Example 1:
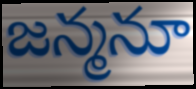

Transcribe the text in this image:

జన్మనూ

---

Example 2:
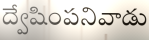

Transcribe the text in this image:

ద్వేషింపనివాడు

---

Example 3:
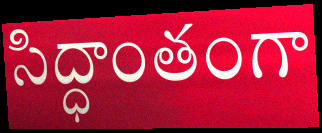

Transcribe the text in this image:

సిద్ధాంతంగా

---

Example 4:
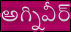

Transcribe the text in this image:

అగ్నివీర్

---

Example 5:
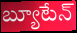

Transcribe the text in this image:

బ్యూటేన్